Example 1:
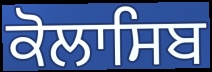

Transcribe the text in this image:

ਕੋਲਾਸਿਬ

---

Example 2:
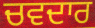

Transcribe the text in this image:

ਚਵਦਾਰ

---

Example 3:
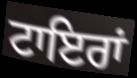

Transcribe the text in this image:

ਟਾਇਰਾਂ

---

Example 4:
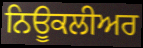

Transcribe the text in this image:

ਨਿਊਕਲੀਅਰ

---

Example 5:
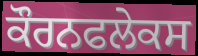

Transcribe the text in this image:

ਕੌਰਨਫਲੇਕਸ